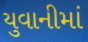
યુવાનીમાં